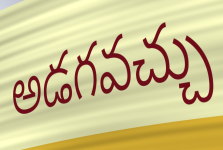
అడగవచ్చు